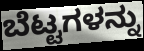
ಬೆಟ್ಟಗಳನ್ನು